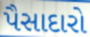
પૈસાદારો